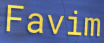
Favim